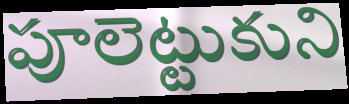
పూలెట్టుకుని